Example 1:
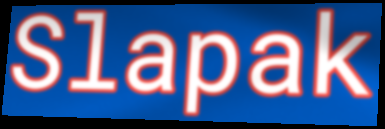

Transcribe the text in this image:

Slapak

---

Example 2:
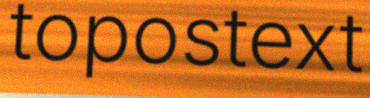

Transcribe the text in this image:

topostext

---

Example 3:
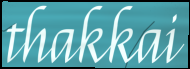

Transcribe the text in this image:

thakkai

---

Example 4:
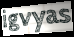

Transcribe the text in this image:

igvyas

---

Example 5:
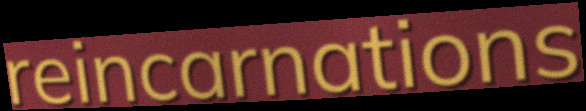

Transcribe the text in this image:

reincarnations